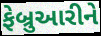
ફેબ્રુઆરીને